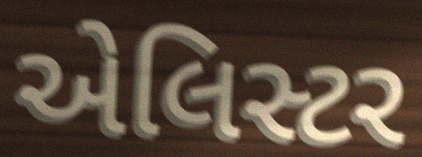
એલિસ્ટર